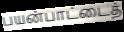
பயன்பாட்டைத்